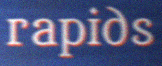
rapids